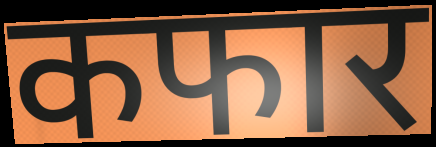
कफार